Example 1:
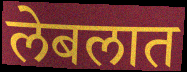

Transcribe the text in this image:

लेबलात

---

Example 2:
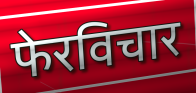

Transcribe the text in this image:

फेरविचार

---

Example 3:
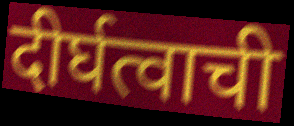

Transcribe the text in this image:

दीर्घत्वाची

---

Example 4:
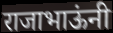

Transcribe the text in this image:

राजाभाऊंनी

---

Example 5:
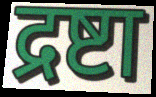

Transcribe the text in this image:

द्रष्टा